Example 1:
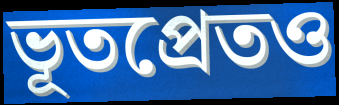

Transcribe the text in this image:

ভূতপ্রেতও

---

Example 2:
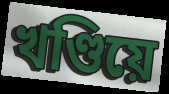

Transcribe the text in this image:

খণ্ডিয়ে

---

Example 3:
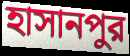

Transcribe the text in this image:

হাসানপুর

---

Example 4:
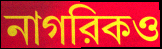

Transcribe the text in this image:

নাগরিকও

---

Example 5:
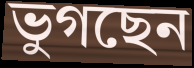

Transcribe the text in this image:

ভুগছেন